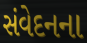
સંવેદનના